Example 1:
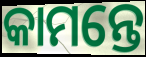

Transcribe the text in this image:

କାମନ୍ତେ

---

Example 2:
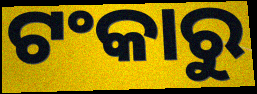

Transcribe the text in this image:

ଟଂକାରୁ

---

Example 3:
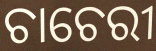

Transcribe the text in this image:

ଚାଚେରୀ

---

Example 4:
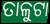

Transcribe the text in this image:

ତାଳୁଟା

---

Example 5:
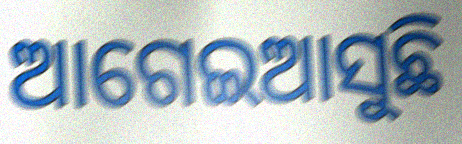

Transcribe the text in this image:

ଆଗେଇଆସୁଛି